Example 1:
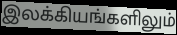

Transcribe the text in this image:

இலக்கியங்களிலும்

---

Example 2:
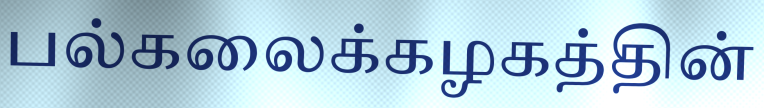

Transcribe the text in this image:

பல்கலைக்கழகத்தின்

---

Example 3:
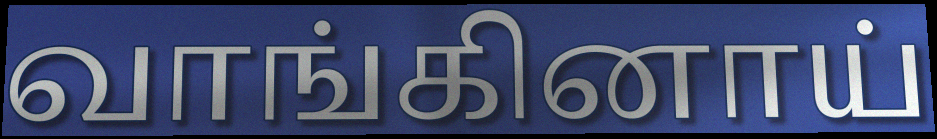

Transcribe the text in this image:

வாங்கினாய்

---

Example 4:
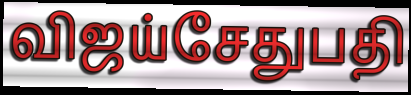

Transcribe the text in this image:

விஜய்சேதுபதி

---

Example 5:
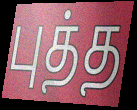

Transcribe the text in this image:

புத்த